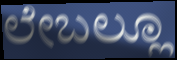
ಲೇಬಲ್ಲೂ